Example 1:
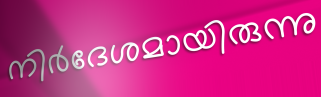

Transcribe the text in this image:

നിർദേശമായിരുന്നു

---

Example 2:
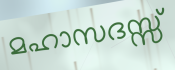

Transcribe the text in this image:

മഹാസദസ്സ്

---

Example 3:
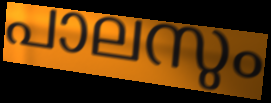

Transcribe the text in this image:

പാലസും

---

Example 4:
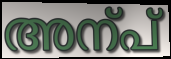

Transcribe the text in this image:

അന്പ്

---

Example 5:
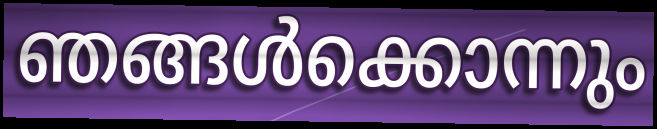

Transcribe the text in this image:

ഞങ്ങൾക്കൊന്നും